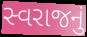
સ્વરાજનું